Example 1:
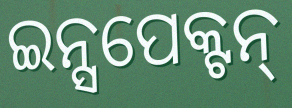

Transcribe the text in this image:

ଇନ୍ସପେକ୍ଟନ୍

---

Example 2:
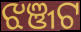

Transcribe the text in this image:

ଝଞ୍ଜଟ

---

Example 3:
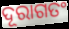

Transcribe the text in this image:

ଦୂରାଗତଂ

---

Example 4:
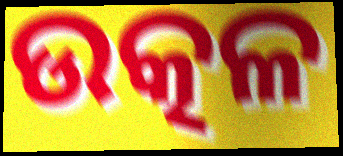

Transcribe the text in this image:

ଉତ୍କଳ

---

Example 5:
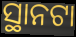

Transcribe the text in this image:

ସ୍ଥାନଟା